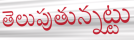
తెలుపుతున్నట్టు